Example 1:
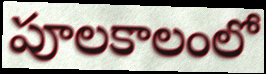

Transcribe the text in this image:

పూలకాలంలో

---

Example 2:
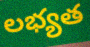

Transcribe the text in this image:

లభ్యత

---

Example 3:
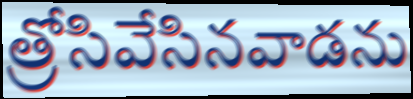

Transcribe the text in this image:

త్రోసివేసినవాడను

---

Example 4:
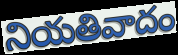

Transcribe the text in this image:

నియతివాదం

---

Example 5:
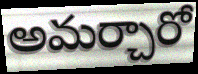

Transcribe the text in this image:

అమర్చారో